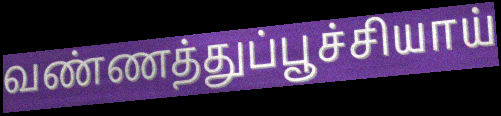
வண்ணத்துப்பூச்சியாய்